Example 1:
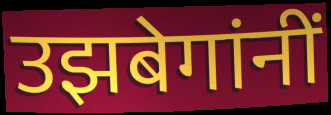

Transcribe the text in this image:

उझबेगांनीं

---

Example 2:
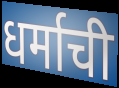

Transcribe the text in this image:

धर्माची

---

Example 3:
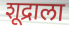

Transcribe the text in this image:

शूद्राला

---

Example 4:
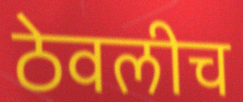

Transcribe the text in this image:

ठेवलीच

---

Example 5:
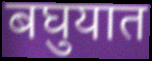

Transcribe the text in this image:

बघुयात